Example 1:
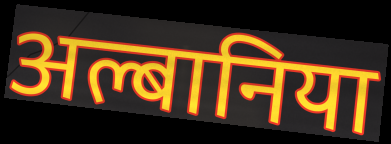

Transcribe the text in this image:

अल्बानिया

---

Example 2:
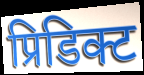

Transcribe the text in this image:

प्रिडिक्ट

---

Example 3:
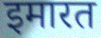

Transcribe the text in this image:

इमारत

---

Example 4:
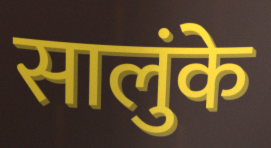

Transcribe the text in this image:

सालुंके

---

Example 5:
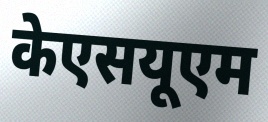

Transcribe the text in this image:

केएसयूएम